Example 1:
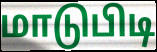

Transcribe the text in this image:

மாடுபிடி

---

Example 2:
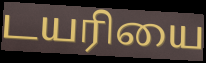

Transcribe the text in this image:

டயரியை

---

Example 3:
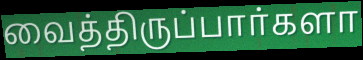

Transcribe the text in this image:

வைத்திருப்பார்களா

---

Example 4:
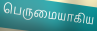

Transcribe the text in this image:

பெருமையாகிய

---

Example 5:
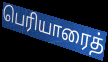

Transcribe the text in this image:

பெரியாரைத்